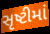
સૃષ્ટીમાં